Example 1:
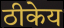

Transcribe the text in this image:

ठीकेय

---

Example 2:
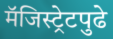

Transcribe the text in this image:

मॅजिस्ट्रेटपुढे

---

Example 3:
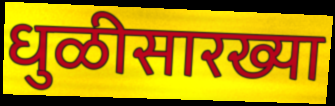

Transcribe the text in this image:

धुळीसारख्या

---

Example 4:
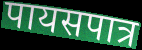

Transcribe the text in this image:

पायसपात्र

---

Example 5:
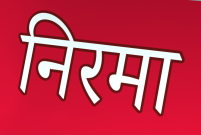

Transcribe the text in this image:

निरमा